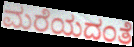
ಮರೆಯದಂತೆ